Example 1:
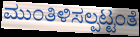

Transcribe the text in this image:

ಮುಂತಿಳಿಸಲ್ಪಟ್ಟಂತೆ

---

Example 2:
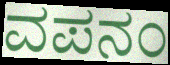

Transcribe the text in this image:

ವಪನಂ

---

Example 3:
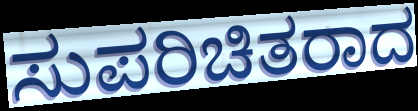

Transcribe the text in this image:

ಸುಪರಿಚಿತರಾದ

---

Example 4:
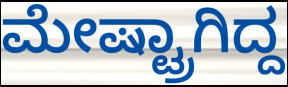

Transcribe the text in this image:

ಮೇಷ್ಟ್ರಾಗಿದ್ದ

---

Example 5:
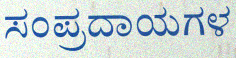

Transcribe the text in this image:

ಸಂಪ್ರದಾಯಗಳ